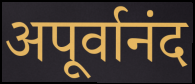
अपूर्वानंद